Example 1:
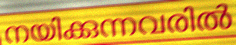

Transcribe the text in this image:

നയിക്കുന്നവരിൽ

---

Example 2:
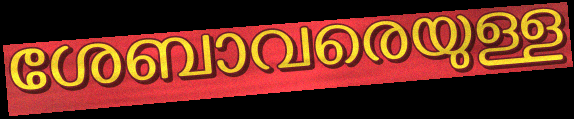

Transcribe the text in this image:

ശേബാവരെയുള്ള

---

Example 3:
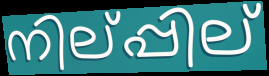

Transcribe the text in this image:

നില്പ്പില്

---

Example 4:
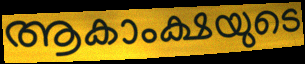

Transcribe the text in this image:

ആകാംക്ഷയുടെ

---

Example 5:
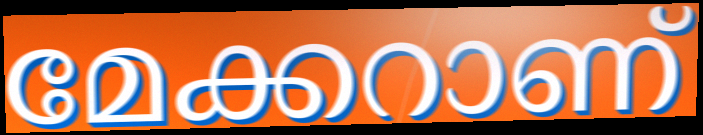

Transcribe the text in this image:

മേക്കറാണ്